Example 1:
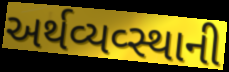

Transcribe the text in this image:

અર્થવ્યવ્સ્થાની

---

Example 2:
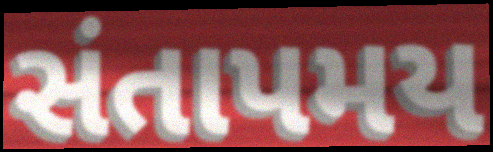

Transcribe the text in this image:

સંતાપમય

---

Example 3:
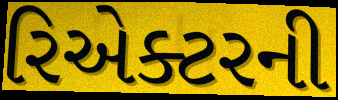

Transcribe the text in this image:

રિએક્ટરની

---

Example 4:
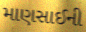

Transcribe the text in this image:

માણસાઈની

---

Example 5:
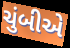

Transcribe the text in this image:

ચુંબીએ